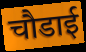
चौडाई